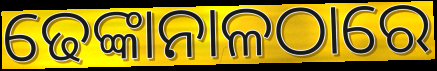
ଢେଙ୍କାନାଳଠାରେ